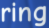
ring